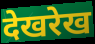
देखरेख